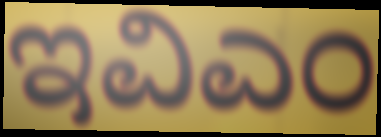
ಇವಿಎಂ